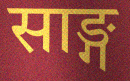
साङ्ग